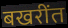
बखरींत